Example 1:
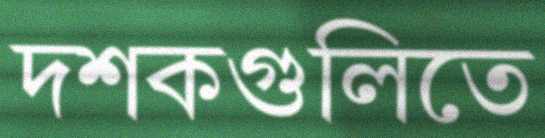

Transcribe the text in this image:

দশকগুলিতে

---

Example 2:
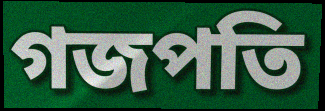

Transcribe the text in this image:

গজপতি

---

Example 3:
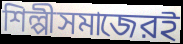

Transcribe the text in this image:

শিল্পীসমাজেরই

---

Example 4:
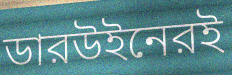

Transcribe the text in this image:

ডারউইনেরই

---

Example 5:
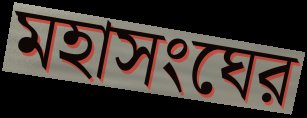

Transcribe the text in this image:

মহাসংঘের